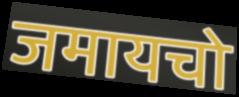
जमायचो